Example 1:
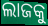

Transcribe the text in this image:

ଲାଜକୁ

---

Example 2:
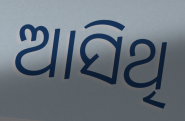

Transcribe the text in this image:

ଆସିଥି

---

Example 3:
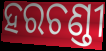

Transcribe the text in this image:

ହରଚଣ୍ଡୀ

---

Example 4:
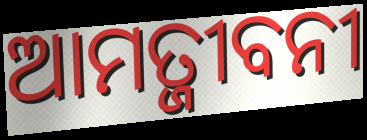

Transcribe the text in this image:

ଆମତ୍ଜୀବନୀ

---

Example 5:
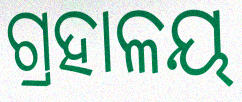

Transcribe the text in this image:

ଗ୍ରହାଳୟ